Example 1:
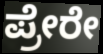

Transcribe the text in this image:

ಪ್ರೇರೇ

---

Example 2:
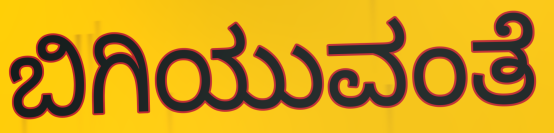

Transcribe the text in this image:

ಬಿಗಿಯುವಂತೆ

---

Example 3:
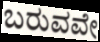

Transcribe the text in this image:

ಬರುವವೇ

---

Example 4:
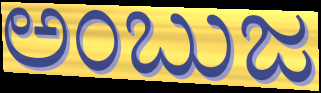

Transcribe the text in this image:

ಅಂಬುಜ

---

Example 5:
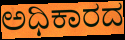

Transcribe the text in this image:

ಅಧಿಕಾರದ